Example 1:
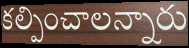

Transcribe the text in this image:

కల్పించాలన్నారు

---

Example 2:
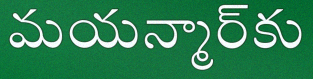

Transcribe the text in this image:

మయన్మార్‌కు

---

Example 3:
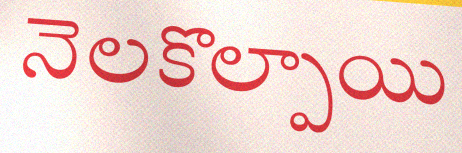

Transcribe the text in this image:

నెలకొల్పాయి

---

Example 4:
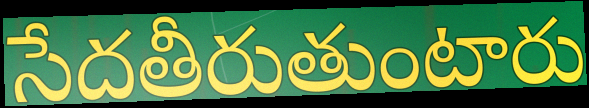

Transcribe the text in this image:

సేదతీరుతుంటారు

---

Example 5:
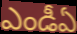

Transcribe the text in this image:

ఎండీఏ